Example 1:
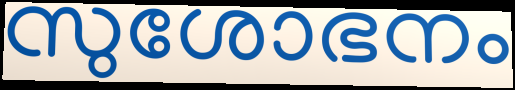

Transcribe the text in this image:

സുശോഭനം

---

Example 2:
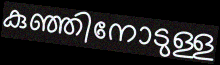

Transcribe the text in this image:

കുഞ്ഞിനോടുള്ള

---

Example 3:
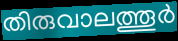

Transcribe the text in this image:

തിരുവാലത്തൂർ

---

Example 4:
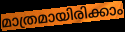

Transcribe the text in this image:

മാത്രമായിരിക്കാം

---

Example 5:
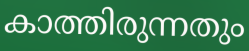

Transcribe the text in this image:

കാത്തിരുന്നതും